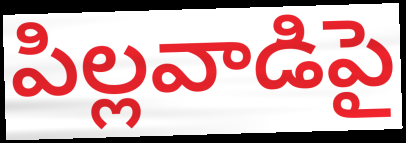
పిల్లవాడిపై